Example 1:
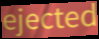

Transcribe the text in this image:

ejected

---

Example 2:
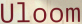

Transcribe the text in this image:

Uloom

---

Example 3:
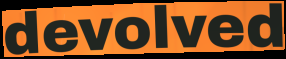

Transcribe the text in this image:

devolved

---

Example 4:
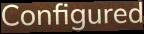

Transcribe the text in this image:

Configured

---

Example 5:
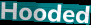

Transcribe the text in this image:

Hooded